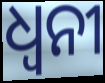
ଧ୍ୱନୀ